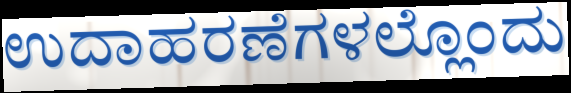
ಉದಾಹರಣೆಗಳಲ್ಲೊಂದು